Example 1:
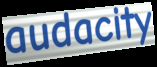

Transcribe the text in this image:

audacity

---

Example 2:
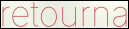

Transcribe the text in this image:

retourna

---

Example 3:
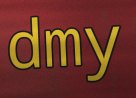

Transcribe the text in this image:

dmy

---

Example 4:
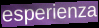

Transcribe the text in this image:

esperienza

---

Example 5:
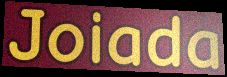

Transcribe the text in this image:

Joiada